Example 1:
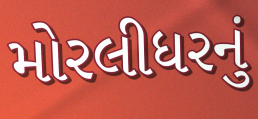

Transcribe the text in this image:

મોરલીધરનું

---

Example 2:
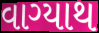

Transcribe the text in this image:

વાગ્યાથ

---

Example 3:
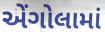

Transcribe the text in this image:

એંગોલામાં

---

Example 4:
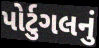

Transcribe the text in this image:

પોર્ટુગલનું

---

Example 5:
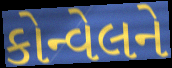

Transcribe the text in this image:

કોન્વેલને